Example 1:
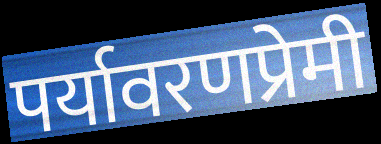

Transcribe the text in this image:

पर्यावरणप्रेमी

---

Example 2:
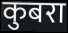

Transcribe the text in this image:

कुबरा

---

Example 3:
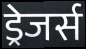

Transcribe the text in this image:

ड्रेजर्स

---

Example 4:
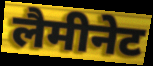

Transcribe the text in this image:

लैमीनेट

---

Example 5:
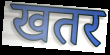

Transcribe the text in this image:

खतर